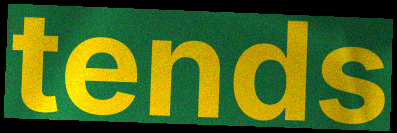
tends